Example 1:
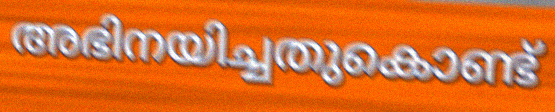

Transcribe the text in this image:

അഭിനയിച്ചതുകൊണ്ട്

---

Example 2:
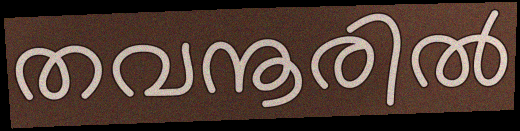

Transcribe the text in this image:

തവനൂരിൽ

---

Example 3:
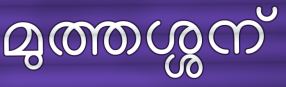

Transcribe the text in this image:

മുത്തശ്ശന്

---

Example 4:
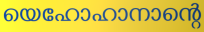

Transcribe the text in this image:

യെഹോഹാനാന്റെ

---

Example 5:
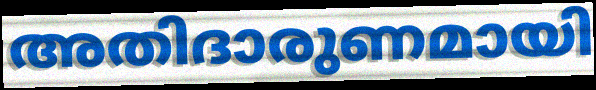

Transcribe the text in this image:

അതിദാരുണമായി